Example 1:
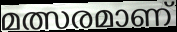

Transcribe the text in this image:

മത്സരമാണ്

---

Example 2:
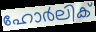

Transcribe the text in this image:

ഹോർലിക്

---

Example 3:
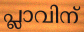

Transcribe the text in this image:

പ്ലാവിന്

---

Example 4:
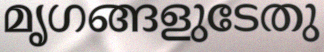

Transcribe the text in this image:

മൃഗങ്ങളുടേതു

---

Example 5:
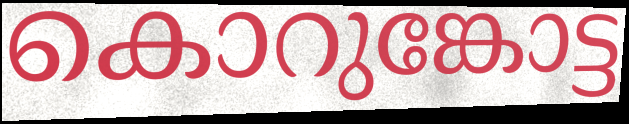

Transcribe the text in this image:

കൊറുങ്കോട്ട